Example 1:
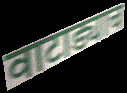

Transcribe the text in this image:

वाटाड्याच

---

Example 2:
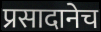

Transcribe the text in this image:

प्रसादानेच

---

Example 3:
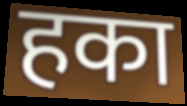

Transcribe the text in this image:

हका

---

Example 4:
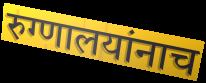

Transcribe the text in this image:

रुग्णालयांनाच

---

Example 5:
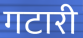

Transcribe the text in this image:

गटारी